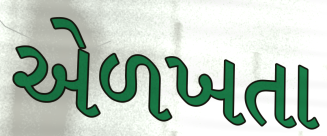
એળખતા